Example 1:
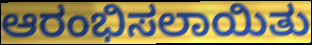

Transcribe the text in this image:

ಆರಂಭಿಸಲಾಯಿತು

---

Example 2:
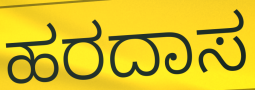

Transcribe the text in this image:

ಹರದಾಸ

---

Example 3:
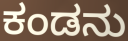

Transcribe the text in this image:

ಕಂಡನು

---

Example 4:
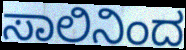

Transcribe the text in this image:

ಸಾಲಿನಿಂದ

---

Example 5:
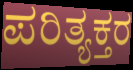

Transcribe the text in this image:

ಪರಿತ್ಯಕ್ತರ